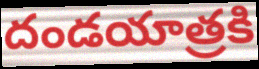
దండయాత్రకి